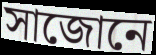
সাজোনে